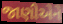
જાણીએને